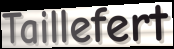
Taillefert